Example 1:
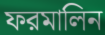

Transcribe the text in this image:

ফরমালিন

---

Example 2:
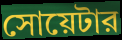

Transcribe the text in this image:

সোয়েটার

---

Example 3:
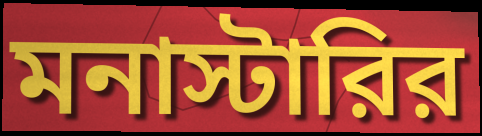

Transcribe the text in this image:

মনাস্টারির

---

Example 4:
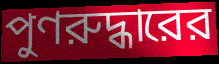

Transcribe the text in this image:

পুণরুদ্ধারের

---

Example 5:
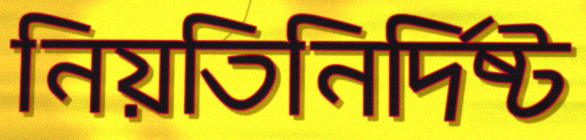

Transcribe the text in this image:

নিয়তিনির্দিষ্ট